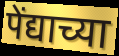
पेंद्याच्या